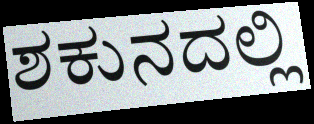
ಶಕುನದಲ್ಲಿ